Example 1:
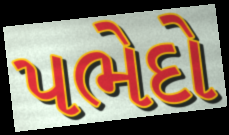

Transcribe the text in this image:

પભેદો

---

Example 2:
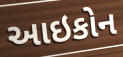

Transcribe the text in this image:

આઇકોન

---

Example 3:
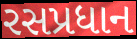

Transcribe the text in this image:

રસપ્રધાન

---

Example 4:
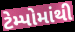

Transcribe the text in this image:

ટેમ્પોમાંથી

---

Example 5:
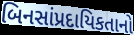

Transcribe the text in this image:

બિનસાંપ્રદાયિકતાનો